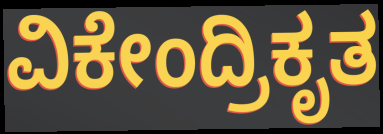
ವಿಕೇಂದ್ರಿಕೃತ